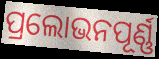
ପ୍ରଲୋଭନପୂର୍ଣ୍ଣ